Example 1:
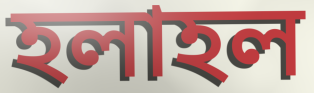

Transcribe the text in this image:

হলাহল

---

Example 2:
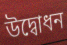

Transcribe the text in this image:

উদ্বোধন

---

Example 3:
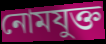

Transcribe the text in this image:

নোমযুক্ত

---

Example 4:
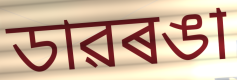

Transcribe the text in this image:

ডাৱৰঙা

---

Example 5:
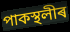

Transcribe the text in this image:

পাকস্থলীৰ